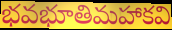
భవభూతిమహాకవి